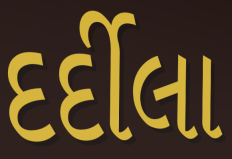
દર્દીલા